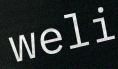
weli